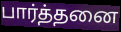
பார்த்தனை